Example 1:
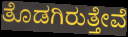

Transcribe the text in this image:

ತೊಡಗಿರುತ್ತೇವೆ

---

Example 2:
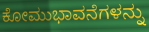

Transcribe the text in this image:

ಕೋಮುಭಾವನೆಗಳನ್ನು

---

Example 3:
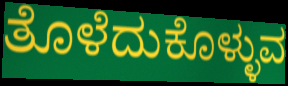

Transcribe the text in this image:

ತೊಳೆದುಕೊಳ್ಳುವ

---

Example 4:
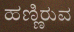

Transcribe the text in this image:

ಹಣ್ಣಿರುವ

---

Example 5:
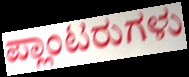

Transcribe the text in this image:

ಪ್ಲಾಂಟರುಗಳು